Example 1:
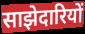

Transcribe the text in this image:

साझेदारियों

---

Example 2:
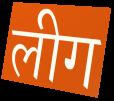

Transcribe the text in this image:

लीग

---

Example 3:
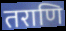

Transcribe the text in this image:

तराणि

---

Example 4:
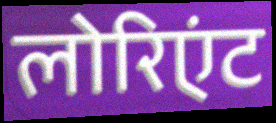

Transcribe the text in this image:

लोरिएंट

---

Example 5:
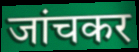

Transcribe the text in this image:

जांचकर